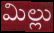
మిల్లు